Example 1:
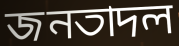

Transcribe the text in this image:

জনতাদল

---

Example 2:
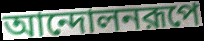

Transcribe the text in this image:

আন্দোলনরূপে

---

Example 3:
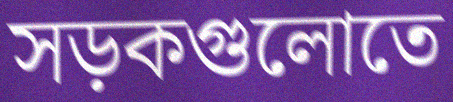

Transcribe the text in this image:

সড়কগুলোতে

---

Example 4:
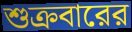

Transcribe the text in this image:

শুক্রবারের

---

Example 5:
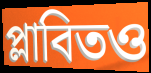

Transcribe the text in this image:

প্লাবিতও